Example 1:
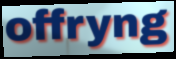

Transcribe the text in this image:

offryng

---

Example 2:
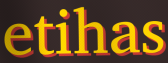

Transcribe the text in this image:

etihas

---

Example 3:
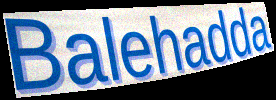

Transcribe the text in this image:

Balehadda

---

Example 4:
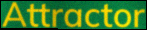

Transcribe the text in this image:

Attractor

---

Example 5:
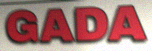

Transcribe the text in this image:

GADA